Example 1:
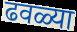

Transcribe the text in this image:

ढवळ्या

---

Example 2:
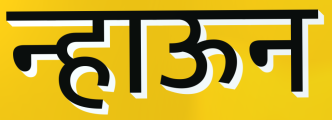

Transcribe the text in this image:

न्हाऊन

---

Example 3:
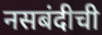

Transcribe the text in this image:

नसबंदीची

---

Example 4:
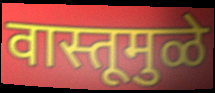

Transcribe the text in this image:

वास्तूमुळे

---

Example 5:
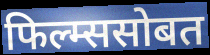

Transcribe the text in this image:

फिल्म्ससोबत